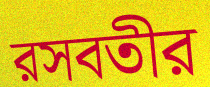
রসবতীর